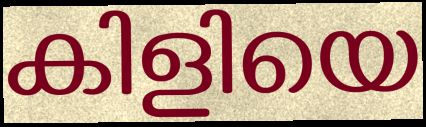
കിളിയെ